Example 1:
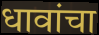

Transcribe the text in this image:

धावांचा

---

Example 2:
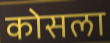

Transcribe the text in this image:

कोसला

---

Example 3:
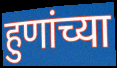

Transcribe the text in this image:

हुणांच्या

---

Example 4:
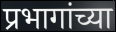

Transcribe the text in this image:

प्रभागांच्या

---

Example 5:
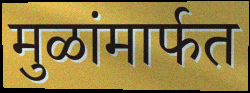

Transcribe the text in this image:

मुळांमार्फत